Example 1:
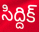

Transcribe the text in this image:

సిద్దిక్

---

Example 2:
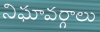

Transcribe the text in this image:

నిఘావర్గాలు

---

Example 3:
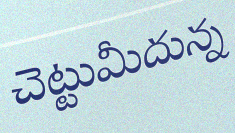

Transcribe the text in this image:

చెట్టుమీదున్న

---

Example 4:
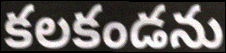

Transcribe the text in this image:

కలకండను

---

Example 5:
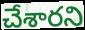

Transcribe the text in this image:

చేశారని